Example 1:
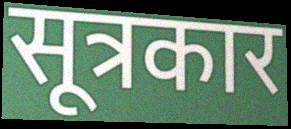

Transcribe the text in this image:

सूत्रकार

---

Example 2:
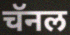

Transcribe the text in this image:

चॅनल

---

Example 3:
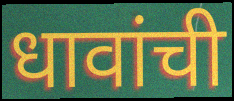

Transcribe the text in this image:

धावांची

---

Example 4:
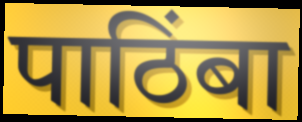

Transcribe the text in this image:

पाठिंबा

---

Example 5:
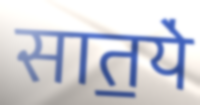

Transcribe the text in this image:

सा॒तये॑